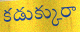
కడుక్కురా